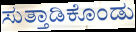
ಸುತ್ತಾಡಿಕೊಂಡು